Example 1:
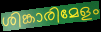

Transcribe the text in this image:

ശിങ്കാരിമേളം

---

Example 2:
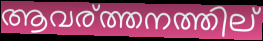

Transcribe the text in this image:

ആവര്ത്തനത്തില്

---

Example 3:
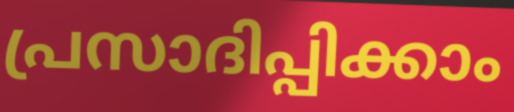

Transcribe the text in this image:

പ്രസാദിപ്പിക്കാം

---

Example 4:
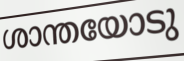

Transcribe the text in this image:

ശാന്തയോടു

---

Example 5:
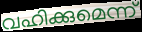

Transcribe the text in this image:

വഹിക്കുമെന്ന്